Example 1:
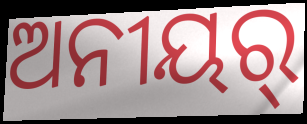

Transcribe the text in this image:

ଅନୀୟର୍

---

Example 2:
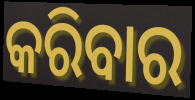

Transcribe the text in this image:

କରିବାର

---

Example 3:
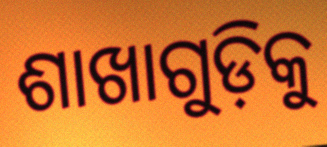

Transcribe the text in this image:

ଶାଖାଗୁଡ଼ିକୁ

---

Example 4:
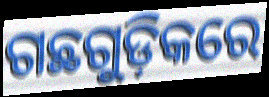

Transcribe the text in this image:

ଗଛଗୁଡ଼ିକରେ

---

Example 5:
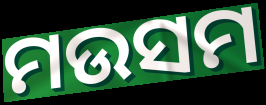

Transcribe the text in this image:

ମଉସମ